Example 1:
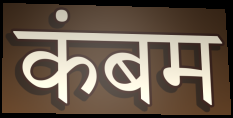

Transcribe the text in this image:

कंबम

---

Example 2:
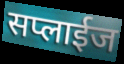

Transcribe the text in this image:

सप्लाईज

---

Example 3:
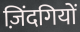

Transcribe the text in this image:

ज़िंदगियों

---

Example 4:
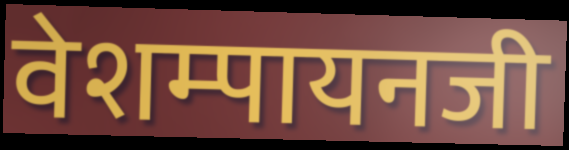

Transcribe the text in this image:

वेशम्पायनजी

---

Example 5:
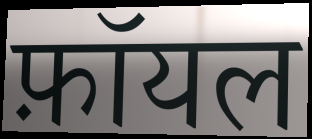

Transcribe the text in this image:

फ़ॉयल